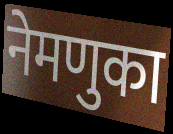
नेमणुका